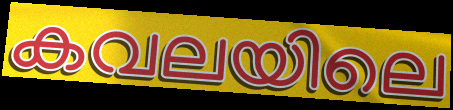
കവലയിലെ